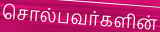
சொல்பவர்களின்